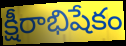
క్షీరాభిషేకం